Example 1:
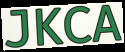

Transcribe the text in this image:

JKCA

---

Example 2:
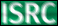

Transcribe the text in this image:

ISRC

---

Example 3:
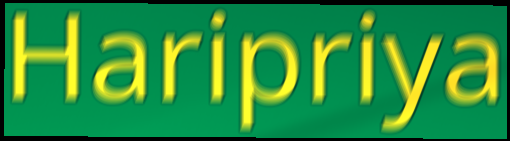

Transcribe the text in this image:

Haripriya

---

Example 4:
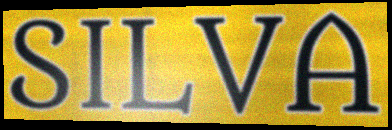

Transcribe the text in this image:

SILVA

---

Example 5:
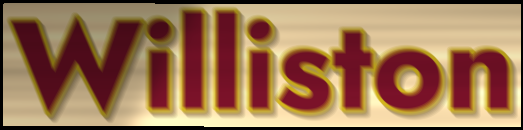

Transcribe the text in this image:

Williston